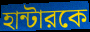
হান্টারকে